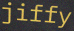
jiffy